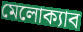
মেলোক্যাব